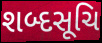
શબ્દસૂચિ